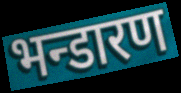
भन्डारण